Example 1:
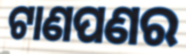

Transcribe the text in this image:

ଟାଣପଣର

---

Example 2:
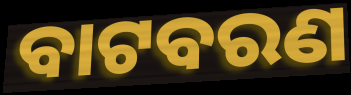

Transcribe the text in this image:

ବାଟବରଣ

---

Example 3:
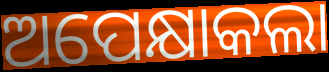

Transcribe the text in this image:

ଅପେକ୍ଷାକଲା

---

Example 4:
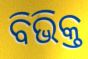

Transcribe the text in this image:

ବିଭିକ୍ତ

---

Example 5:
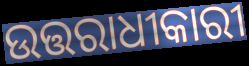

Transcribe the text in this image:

ଉତ୍ତରାଧୀକାରୀ